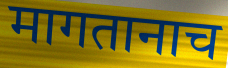
मागतानाच